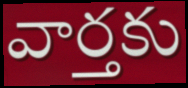
వార్తకు